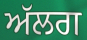
ਅੱਲਗ